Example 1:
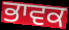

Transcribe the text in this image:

ਭਾਵਕ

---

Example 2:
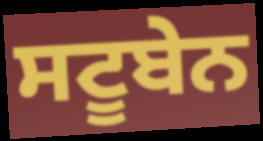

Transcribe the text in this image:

ਸਟੂਬੇਨ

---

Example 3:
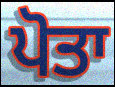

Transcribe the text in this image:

ਪੋਤਾ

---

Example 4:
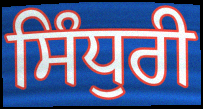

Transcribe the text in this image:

ਸਿੰਧੁਰੀ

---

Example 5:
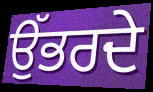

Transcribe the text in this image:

ਉੱਭਰਦੇ